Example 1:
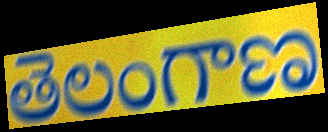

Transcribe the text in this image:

తెలంగాణ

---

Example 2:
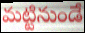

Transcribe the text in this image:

మట్టినుండే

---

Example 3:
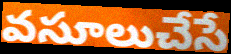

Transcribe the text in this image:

వసూలుచేసే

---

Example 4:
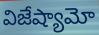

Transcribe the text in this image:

విజేష్యామో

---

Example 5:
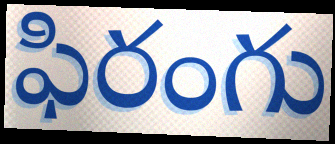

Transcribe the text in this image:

ఫిరంగు